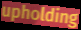
upholding